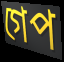
গেপ